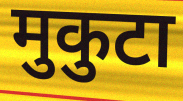
मुकुटा